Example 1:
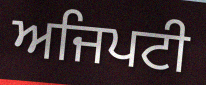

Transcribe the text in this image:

ਅਜਿਪਟੀ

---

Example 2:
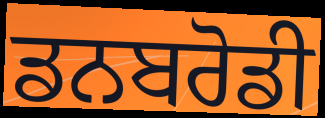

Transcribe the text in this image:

ਡਨਬਰੋਡੀ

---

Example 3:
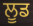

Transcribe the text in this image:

ਲੂਡ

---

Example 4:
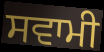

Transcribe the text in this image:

ਸਵਾਮੀ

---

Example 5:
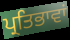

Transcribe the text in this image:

ਪ੍ਰਤਿਭਾਵਾਂ